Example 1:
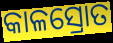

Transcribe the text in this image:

କାଳସ୍ରୋତ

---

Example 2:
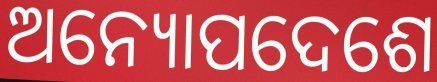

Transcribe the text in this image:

ଅନ୍ୟୋପଦେଶେ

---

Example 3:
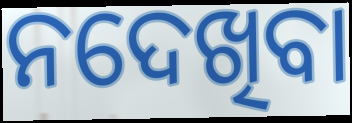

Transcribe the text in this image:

ନଦେଖିବା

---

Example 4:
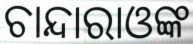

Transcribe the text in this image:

ଚାନ୍ଦାରାଓଙ୍କ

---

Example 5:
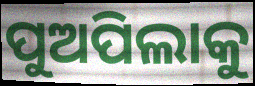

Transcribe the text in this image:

ପୁଅପିଲାକୁ